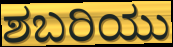
ಶಬರಿಯು